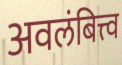
अवलंबित्त्व